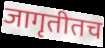
जागृतीतच